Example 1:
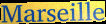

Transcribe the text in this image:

Marseille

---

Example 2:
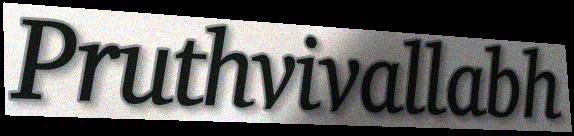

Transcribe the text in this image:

Pruthvivallabh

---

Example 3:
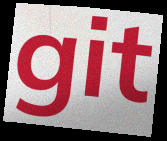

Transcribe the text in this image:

git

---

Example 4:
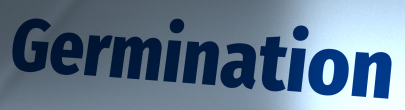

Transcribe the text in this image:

Germination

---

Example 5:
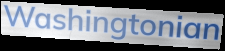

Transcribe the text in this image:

Washingtonian